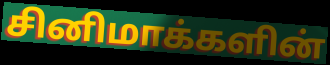
சினிமாக்களின்